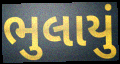
ભુલાયું